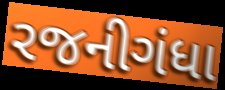
રજનીગંધા